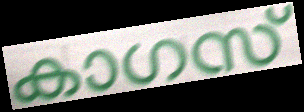
കാഗസ്